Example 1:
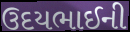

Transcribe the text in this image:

ઉદયભાઈની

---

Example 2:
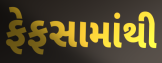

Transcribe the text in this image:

ફેફસામાંથી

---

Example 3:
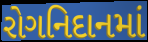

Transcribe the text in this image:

રોગનિદાનમાં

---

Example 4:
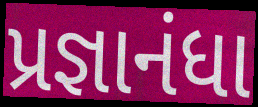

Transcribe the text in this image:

પ્રજ્ઞાનંધા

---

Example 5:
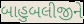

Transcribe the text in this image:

બાહુબલીજીને